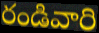
రండివారి